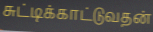
சுட்டிக்காட்டுவதன்